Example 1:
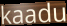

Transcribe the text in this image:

kaadu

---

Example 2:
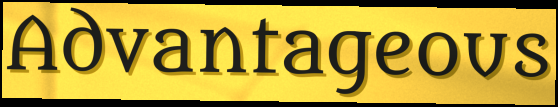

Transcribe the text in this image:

Advantageous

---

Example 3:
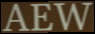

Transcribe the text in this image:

AEW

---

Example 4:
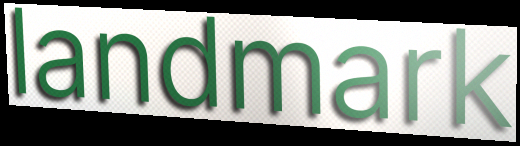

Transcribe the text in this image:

landmark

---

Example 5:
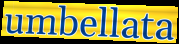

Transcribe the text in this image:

umbellata